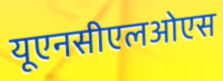
यूएनसीएलओएस